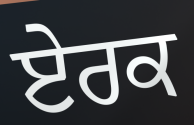
ਏਰਕ